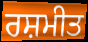
ਰਸ਼ਮੀਤ